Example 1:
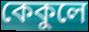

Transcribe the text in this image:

কেকুলে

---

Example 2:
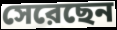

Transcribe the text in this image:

সেরেছেন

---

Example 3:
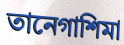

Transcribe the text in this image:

তানেগাশিমা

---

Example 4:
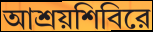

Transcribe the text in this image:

আশ্রয়শিবিরে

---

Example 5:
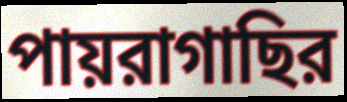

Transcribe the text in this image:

পায়রাগাছির